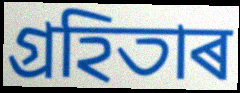
গ্ৰহিতাৰ